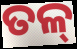
ତଳ୍